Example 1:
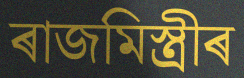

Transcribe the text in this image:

ৰাজমিস্ত্ৰীৰ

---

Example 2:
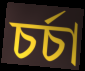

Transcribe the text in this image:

চৰ্চা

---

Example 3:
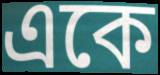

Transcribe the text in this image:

একে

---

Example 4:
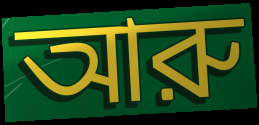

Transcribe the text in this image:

আৰু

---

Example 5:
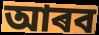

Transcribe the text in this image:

আৰব